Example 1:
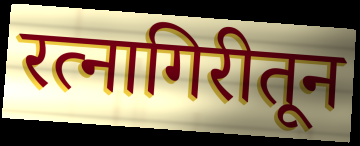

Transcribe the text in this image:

रत्नागिरीतून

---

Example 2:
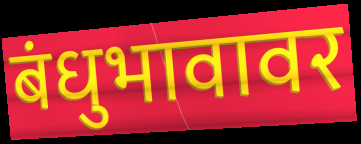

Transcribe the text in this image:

बंधुभावावर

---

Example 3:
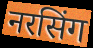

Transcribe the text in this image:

नरसिंग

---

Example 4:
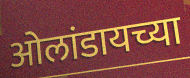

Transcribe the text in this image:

ओलांडायच्या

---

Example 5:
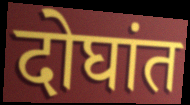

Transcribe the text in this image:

दोघांत